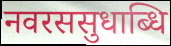
नवरससुधाब्धि